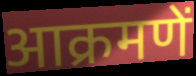
आक्रमणें